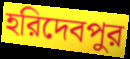
হরিদেবপুর